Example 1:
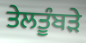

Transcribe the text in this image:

ਤੇਲਤੂੰਬੜੇ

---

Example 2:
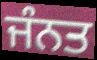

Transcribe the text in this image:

ਜੰਨਤ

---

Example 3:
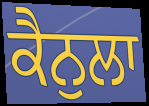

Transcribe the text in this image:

ਕੈਨੁਲਾ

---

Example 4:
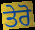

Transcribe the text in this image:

ਤੇਰੋ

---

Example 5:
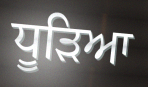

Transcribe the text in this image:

ਧੂੜਿਆ